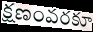
క్షణంవరకూ